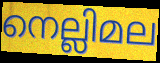
നെല്ലിമല